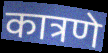
कात्रणे